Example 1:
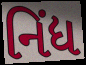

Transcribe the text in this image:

નિંદ્ય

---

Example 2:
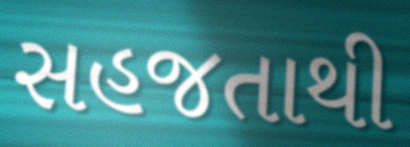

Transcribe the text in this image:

સહજતાથી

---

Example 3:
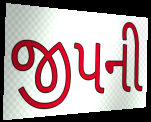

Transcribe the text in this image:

જીપની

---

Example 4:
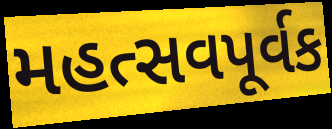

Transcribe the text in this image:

મહત્સવપૂર્વક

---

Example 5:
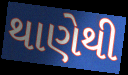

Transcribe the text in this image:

થાણેથી